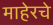
माहेरचे